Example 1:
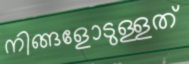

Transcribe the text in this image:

നിങ്ങളോടുള്ളത്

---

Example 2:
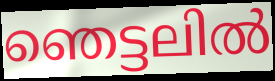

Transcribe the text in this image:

ഞെട്ടലിൽ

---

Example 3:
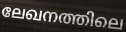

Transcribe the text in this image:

ലേഖനത്തിലെ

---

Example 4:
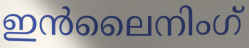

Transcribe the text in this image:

ഇൻലൈനിംഗ്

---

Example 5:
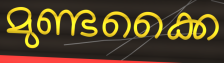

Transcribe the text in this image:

മുണ്ടക്കൈ